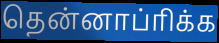
தென்னாப்ரிக்க